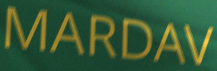
MARDAV